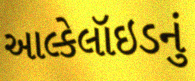
આલ્કેલૉઇડનું